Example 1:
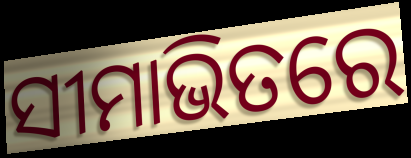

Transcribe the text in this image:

ସୀମାଭିତରେ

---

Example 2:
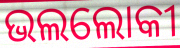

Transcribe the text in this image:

ଭଲଲୋକୀ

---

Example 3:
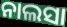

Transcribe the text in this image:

ନାଲସା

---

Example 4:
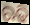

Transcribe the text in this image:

ଋଢି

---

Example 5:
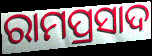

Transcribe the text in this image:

ରାମପ୍ରସାଦ